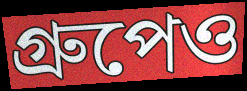
গ্রুপেও